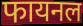
फायनल